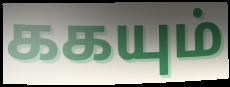
ககயும்